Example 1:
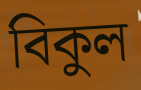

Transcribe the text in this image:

বিকুল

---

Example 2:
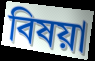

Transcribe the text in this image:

বিষয়া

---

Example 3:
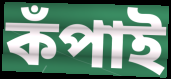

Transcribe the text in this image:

কঁপাই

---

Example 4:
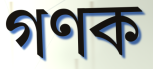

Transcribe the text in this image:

গণক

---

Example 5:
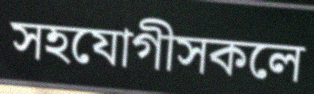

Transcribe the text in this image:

সহযোগীসকলে